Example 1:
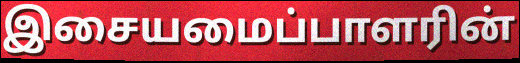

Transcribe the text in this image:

இசையமைப்பாளரின்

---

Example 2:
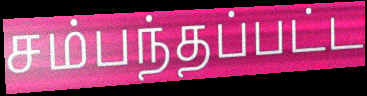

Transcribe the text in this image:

சம்பந்தப்பட்ட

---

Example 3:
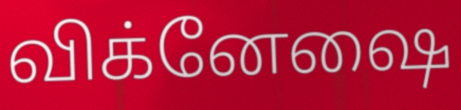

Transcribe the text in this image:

விக்னேஷை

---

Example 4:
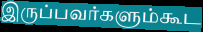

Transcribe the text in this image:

இருப்பவர்களும்கூட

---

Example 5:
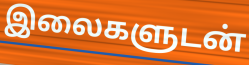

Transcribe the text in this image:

இலைகளுடன்